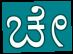
ಚೇ